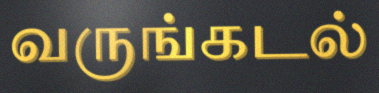
வருங்கடல்